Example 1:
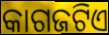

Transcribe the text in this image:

କାଗଜଟିଏ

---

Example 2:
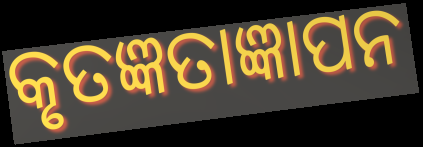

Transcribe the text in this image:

କୃତଜ୍ଞତାଜ୍ଞାପନ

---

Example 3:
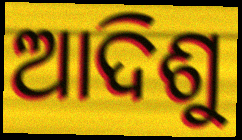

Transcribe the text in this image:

ଆଦିଶୁ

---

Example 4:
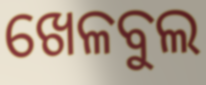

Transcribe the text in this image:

ଖେଳବୁଲ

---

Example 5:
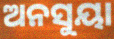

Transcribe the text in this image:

ଅନସୁୟା